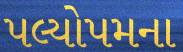
પલ્યોપમના